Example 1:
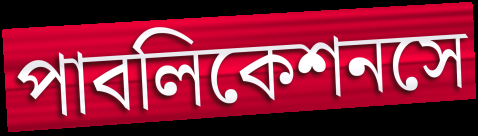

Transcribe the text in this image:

পাবলিকেশনসে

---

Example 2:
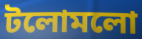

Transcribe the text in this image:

টলোমলো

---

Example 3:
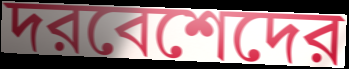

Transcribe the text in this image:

দরবেশেদের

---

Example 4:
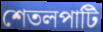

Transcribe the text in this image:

শেতলপাটি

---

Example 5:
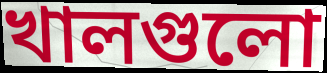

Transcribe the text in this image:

খালগুলো